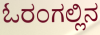
ಓರಂಗಲ್ಲಿನ